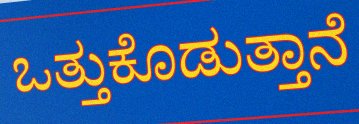
ಒತ್ತುಕೊಡುತ್ತಾನೆ